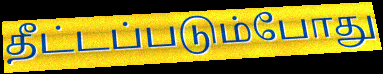
தீட்டப்படும்போது